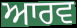
ਆਰਵ